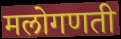
मलोगणती